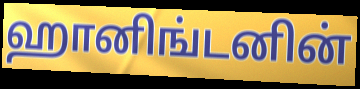
ஹானிங்டனின்